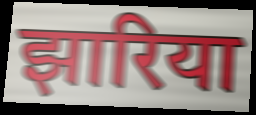
झारिया